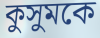
কুসুমকে